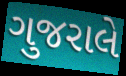
ગુજરાલે